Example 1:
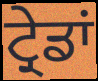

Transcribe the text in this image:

ਟ੍ਰੇਡਾਂ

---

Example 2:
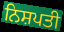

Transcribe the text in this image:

ਨਿਸ਼ਪਤੀ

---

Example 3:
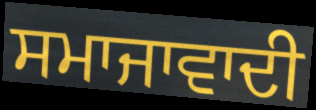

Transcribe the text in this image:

ਸਮਾਜਾਵਾਦੀ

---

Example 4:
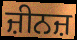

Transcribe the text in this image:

ਜ਼ੀਨਜ਼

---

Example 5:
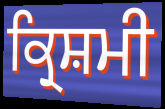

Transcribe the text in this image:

ਕ੍ਰਿਸ਼ਮੀ